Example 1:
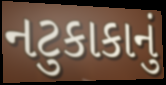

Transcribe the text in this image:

નટુકાકાનું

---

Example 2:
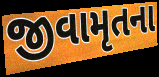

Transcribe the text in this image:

જીવામૃતના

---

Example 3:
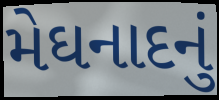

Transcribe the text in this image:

મેઘનાદનું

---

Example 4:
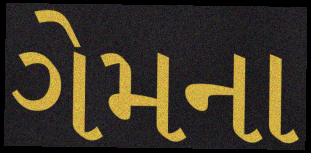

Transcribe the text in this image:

ગેમના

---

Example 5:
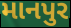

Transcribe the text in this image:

માનપુર